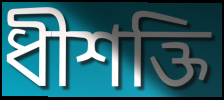
ধীশক্তি